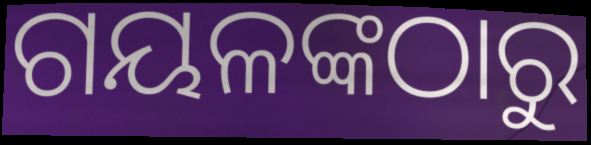
ଗୟଳଙ୍କଠାରୁ